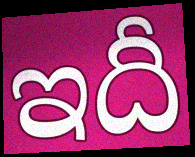
ఇదీ